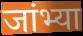
जांभ्या